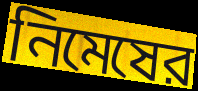
নিমেষের